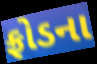
ફ્રોડના